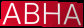
ABHA